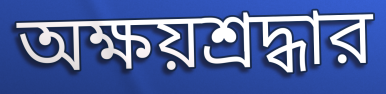
অক্ষয়শ্রদ্ধার